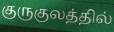
குருகுலத்தில்